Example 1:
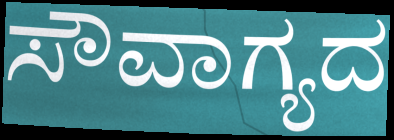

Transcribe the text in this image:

ಸೌವಾಗ್ಯದ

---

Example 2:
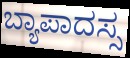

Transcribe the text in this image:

ಬ್ಯಾಪಾದಸ್ಸ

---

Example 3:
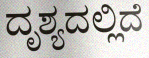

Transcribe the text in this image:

ದೃಶ್ಯದಲ್ಲಿದೆ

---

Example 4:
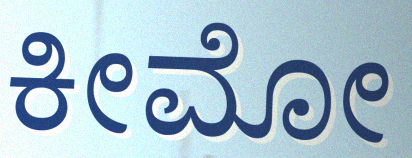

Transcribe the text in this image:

ಕೀಮೋ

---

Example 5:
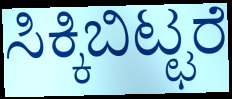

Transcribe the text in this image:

ಸಿಕ್ಕಿಬಿಟ್ಟರೆ